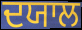
ਦਯਾਲ